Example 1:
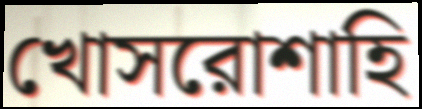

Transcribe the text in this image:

খোসরোশাহি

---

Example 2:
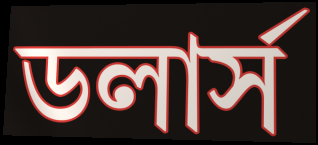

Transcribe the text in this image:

ডলার্স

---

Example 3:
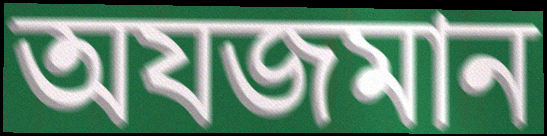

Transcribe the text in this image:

অযজমান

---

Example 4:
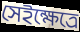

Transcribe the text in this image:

সেইক্ষেত্রে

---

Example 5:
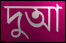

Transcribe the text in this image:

দুআ